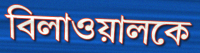
বিলাওয়ালকে